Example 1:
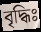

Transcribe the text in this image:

বৃদ্ধিঃ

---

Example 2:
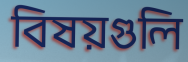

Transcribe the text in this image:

বিষয়গুলি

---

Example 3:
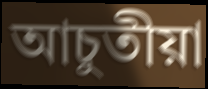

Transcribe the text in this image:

আচুতীয়া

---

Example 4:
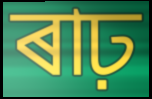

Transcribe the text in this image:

ৰাঢ়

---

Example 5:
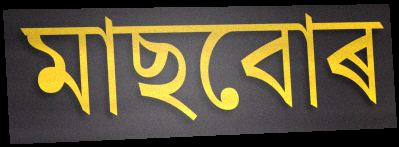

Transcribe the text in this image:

মাছবোৰ